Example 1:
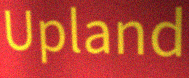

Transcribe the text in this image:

Upland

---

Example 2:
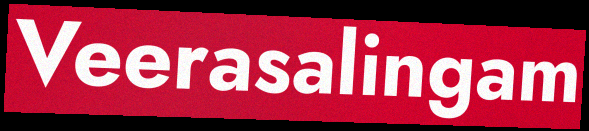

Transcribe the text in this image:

Veerasalingam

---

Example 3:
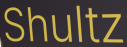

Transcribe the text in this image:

Shultz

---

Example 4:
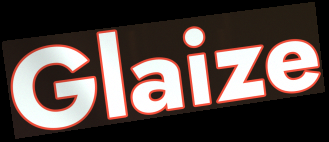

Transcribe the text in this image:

Glaize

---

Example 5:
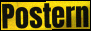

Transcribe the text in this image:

Postern